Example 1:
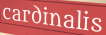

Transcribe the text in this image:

cardinalis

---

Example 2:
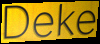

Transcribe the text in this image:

Deke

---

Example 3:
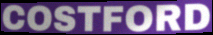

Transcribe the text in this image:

COSTFORD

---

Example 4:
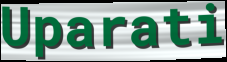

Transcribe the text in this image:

Uparati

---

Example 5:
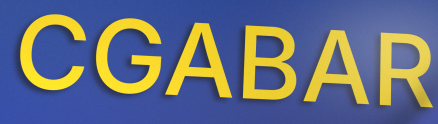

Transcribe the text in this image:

CGABAR